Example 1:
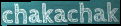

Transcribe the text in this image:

chakachak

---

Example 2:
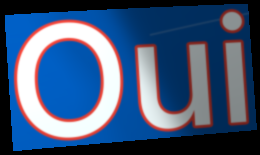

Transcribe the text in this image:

Oui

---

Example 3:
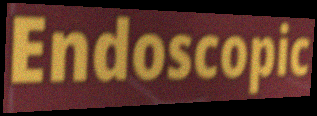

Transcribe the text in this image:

Endoscopic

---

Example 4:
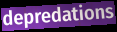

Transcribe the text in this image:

depredations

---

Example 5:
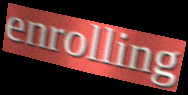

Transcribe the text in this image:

enrolling